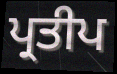
ਪ੍ਰਤੀਪ